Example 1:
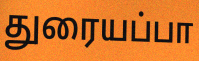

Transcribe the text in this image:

துரையப்பா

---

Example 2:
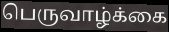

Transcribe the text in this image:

பெருவாழ்க்கை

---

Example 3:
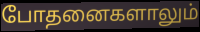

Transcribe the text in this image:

போதனைகளாலும்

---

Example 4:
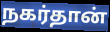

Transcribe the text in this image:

நகர்தான்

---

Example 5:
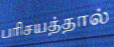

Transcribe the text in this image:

பரிசயத்தால்